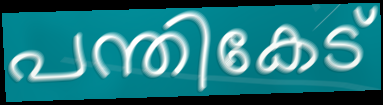
പന്തികേട്